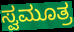
ಸ್ವಮೂತ್ರ